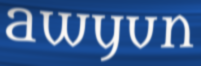
awyun